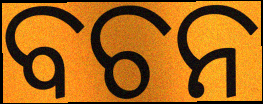
ବଚନ